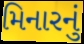
મિનારનું